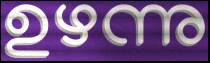
ഉഴന്നു